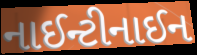
નાઈન્ટીનાઈન